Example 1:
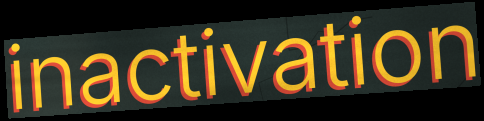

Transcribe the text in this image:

inactivation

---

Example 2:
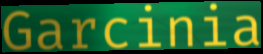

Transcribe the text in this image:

Garcinia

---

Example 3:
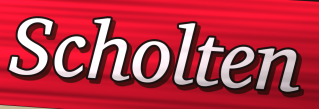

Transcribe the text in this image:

Scholten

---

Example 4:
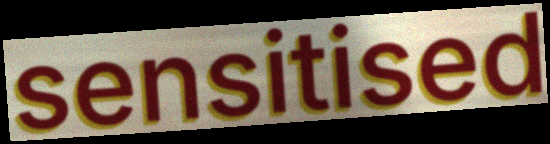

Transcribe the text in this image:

sensitised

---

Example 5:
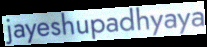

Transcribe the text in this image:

jayeshupadhyaya